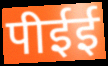
पीईई